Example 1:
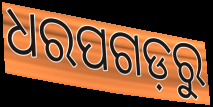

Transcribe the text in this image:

ଧରପଗଡ଼ରୁ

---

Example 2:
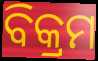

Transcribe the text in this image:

ବିକ୍ରମ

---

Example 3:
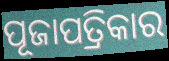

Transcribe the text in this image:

ପୂଜାପତ୍ରିକାର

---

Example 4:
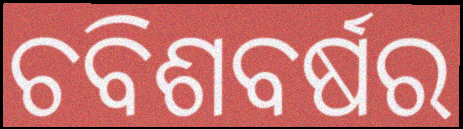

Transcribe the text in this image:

ଚବିଶବର୍ଷର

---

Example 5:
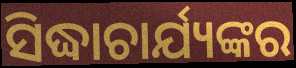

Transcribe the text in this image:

ସିଦ୍ଧାଚାର୍ଯ୍ୟଙ୍କର